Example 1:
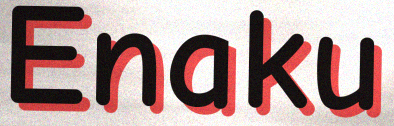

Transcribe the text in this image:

Enaku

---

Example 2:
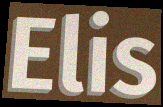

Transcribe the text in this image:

Elis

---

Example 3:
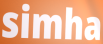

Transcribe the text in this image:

simha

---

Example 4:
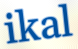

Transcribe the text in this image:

ikal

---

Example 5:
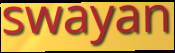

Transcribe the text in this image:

swayan